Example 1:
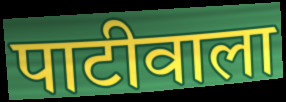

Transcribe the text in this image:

पाटीवाला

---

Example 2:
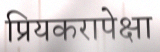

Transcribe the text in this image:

प्रियकरापेक्षा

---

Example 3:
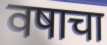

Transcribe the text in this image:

वषाचा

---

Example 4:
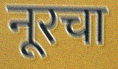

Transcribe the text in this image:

नूरचा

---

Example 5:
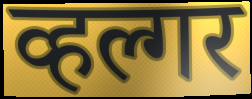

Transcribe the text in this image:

व्हल्गर